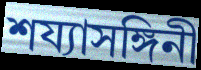
শয্যাসঙ্গিনী